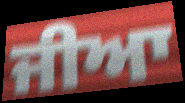
ਜੀਆ